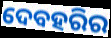
ଦେବହରିର